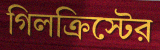
গিলক্রিস্টের